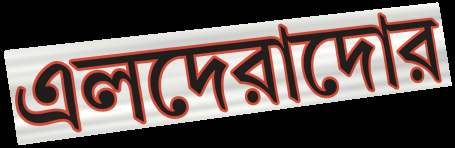
এলদেরাদোর